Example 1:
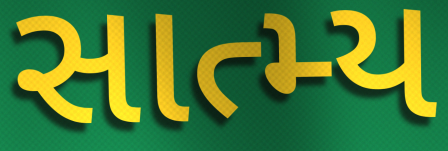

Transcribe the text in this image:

સાત્મ્ય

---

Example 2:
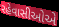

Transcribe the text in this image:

રહેવાસીઓએ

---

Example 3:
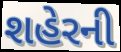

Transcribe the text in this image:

શહેરની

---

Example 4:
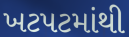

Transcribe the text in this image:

ખટપટમાંથી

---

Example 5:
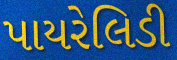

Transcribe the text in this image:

પાયરેલિડી